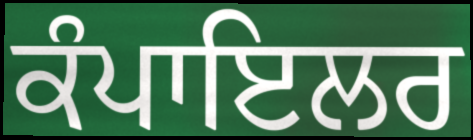
ਕੰਪਾਇਲਰ